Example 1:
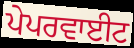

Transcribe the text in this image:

ਪੇਪਰਵਾਈਟ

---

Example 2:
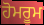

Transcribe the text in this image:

ਹੋਮਰੂਮ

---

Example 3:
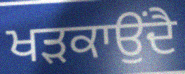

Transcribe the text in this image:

ਖੜਕਾਉਂਦੈ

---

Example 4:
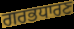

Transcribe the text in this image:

ਗਰਭਧਾਰਣ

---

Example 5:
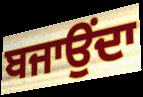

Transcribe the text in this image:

ਬਜਾਉਂਦਾ